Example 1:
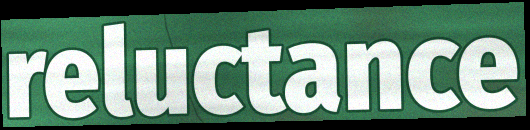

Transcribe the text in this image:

reluctance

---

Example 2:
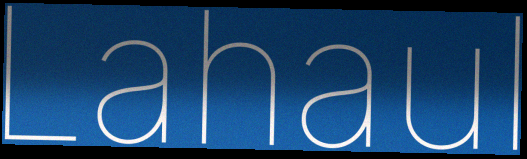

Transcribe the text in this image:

Lahaul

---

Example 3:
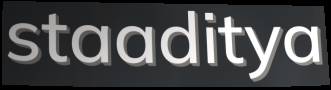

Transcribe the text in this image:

staaditya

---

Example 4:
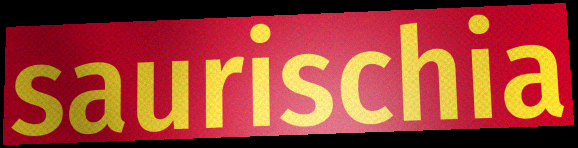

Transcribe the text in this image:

saurischia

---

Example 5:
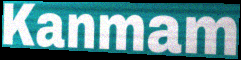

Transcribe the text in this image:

Kanmam